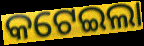
କଟେଇଲା